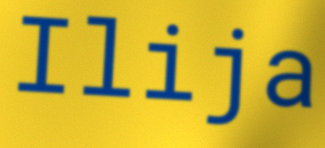
Ilija